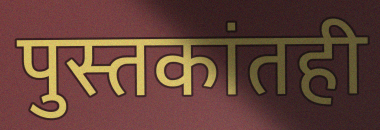
पुस्तकांतही